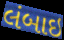
લંબાઇ